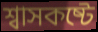
শ্বাসকষ্টে